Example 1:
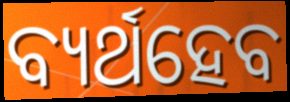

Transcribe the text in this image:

ବ୍ୟର୍ଥହେବ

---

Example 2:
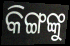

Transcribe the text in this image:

କିଙ୍ଗଙ୍କୁ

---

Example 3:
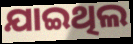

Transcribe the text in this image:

ଯାଇଥିଲ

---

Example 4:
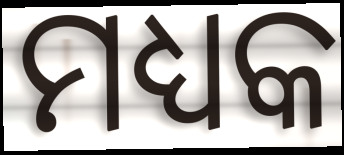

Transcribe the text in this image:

ମଧ୍ଯକ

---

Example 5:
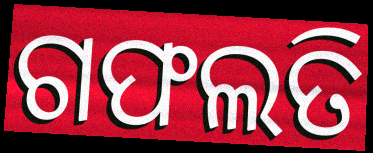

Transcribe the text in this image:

ଗଫଲତି